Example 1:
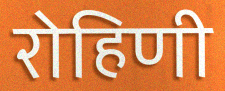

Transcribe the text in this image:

रोहिणी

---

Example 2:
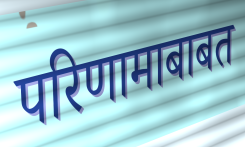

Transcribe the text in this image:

परिणामाबाबत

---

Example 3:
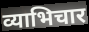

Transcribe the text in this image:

व्याभिचार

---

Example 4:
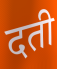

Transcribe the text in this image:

दती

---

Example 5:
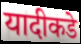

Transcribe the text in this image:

यादीकडे